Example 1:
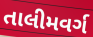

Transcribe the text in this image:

તાલીમવર્ગ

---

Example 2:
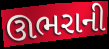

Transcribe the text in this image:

ઊભરાની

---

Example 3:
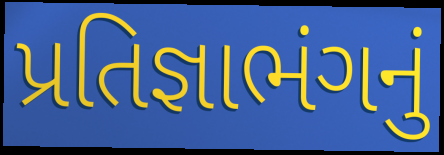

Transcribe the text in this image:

પ્રતિજ્ઞાભંગનું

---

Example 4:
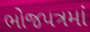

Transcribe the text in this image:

ભોજપત્રમાં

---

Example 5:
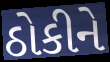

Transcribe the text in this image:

ઠોકીને